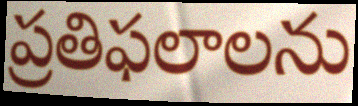
ప్రతిఫలాలను